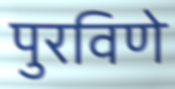
पुरविणे